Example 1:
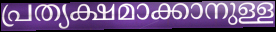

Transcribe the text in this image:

പ്രത്യക്ഷമാക്കാനുള്ള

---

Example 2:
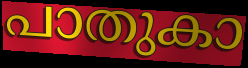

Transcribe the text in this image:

പാതുകാ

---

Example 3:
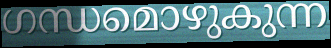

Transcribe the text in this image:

ഗന്ധമൊഴുകുന്ന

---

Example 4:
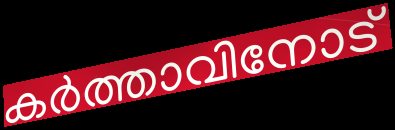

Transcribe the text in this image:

കർത്താവിനോട്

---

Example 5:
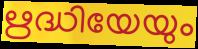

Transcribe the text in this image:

ഋദ്ധിയേയും